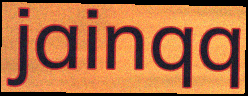
jainqq